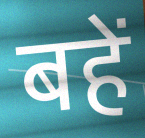
बहें